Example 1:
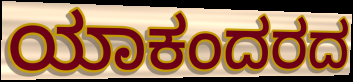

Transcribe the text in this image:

ಯಾಕಂದರದ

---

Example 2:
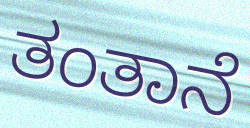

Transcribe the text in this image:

ತಂತಾನೆ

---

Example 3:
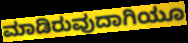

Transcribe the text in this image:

ಮಾಡಿರುವುದಾಗಿಯೂ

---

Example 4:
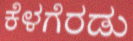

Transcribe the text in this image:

ಕೆಳಗೆರಡು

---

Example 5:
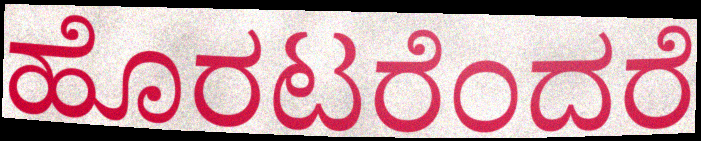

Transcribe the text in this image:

ಹೊರಟರೆಂದರೆ